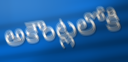
అకౌంట్లలోకి